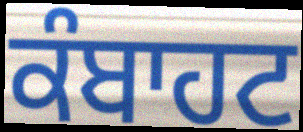
ਕੰਬਾਹਟ